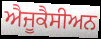
ਐਜੂਕੈਸੀਅਨ